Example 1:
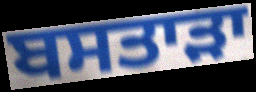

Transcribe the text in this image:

ਬਸਤਾੜਾ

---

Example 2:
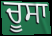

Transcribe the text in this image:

ਚੂਸਾ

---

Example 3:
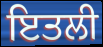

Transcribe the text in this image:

ਇਤਲੀ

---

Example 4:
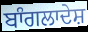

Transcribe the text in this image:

ਬਾੰਗਲਾਦੇਸ਼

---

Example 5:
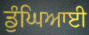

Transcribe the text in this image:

ਡੁੰਘਿਆਈ